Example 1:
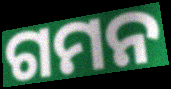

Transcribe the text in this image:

ଗମନ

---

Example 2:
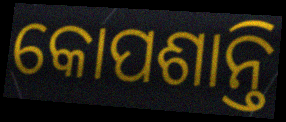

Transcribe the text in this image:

କୋପଶାନ୍ତି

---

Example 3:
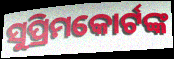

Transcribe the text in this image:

ସୁପ୍ରିମକୋର୍ଟଙ୍କ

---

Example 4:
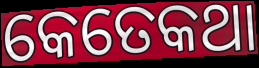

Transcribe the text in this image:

କେତେକଥା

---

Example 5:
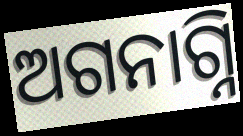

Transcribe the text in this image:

ଅଗନାଗ୍ନି